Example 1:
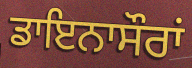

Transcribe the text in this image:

ਡਾਇਨਾਸੌਰਾਂ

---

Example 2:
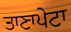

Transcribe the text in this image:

ਤਾਣਾਪੇਟਾ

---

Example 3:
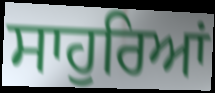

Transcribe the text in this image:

ਸਾਹੁਰਿਆਂ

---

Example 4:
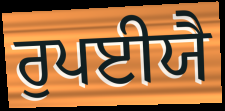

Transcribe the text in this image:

ਰੁਪਈਯੈ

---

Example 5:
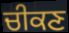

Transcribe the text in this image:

ਚੀਕਣ